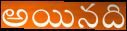
అయినది